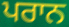
ਪਰਾਨ